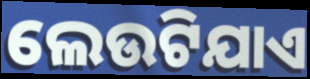
ଲେଉଟିଯାଏ